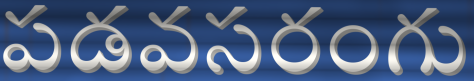
పడవసరంగు